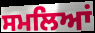
ਸਮਲਿਆਂ